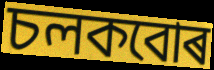
চলকবোৰ